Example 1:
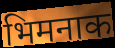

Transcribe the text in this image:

भिमनाक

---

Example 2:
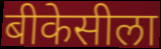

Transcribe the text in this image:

बीकेसीला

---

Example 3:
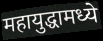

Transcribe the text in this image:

महायुद्धामध्ये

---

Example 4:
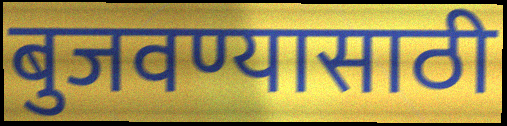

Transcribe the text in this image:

बुजवण्यासाठी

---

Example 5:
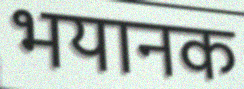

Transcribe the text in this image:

भयानक